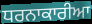
ਧਰਨਾਕਾਰੀਆ